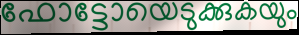
ഫോട്ടോയെടുക്കുകയും